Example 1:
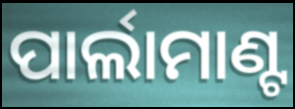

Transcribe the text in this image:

ପାର୍ଲାମାଣ୍ଟ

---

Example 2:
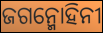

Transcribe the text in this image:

ଜଗନ୍ମୋହିନୀ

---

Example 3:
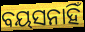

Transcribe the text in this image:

ବୟସନାହିଁ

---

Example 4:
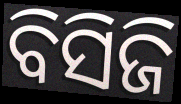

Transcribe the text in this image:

ବିସିଜି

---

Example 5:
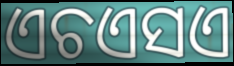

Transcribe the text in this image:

ଏଚଏସଏ